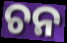
ଚନ